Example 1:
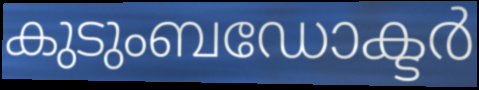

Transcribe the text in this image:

കുടുംബഡോക്ടർ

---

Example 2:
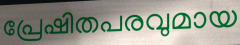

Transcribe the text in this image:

പ്രേഷിതപരവുമായ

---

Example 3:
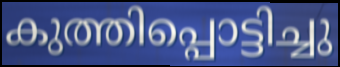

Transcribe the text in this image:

കുത്തിപ്പൊട്ടിച്ചു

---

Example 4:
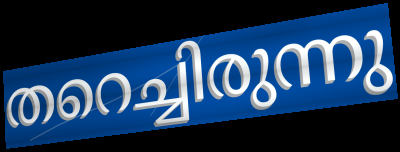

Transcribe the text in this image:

തറെച്ചിരുന്നു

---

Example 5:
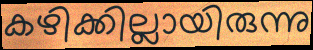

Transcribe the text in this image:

കഴിക്കില്ലായിരുന്നു